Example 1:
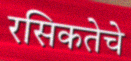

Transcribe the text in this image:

रसिकतेचे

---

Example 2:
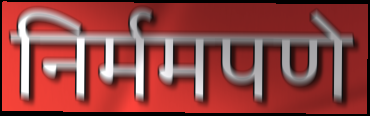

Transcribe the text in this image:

निर्ममपणे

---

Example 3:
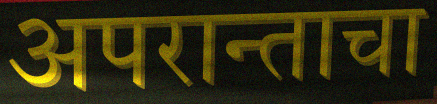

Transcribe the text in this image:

अपरान्ताचा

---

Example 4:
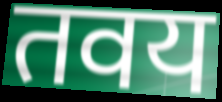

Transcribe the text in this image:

तवय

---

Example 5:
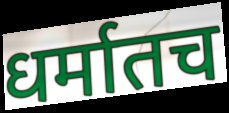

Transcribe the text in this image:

धर्मातच